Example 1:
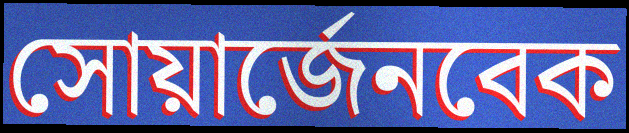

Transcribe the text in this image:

সোয়ার্জেনবেক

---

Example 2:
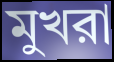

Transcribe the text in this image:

মুখরা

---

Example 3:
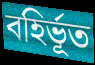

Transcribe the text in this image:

বহির্ভূত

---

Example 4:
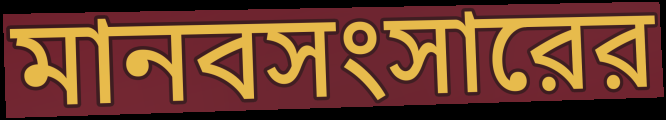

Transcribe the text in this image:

মানবসংসারের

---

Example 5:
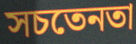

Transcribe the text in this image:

সচতেনতা